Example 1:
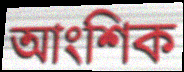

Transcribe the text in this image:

আংশিক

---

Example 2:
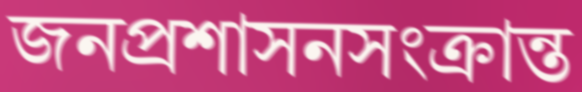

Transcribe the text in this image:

জনপ্রশাসনসংক্রান্ত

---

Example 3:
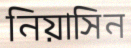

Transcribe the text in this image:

নিয়াসিন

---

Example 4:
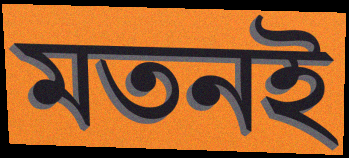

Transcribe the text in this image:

মতনই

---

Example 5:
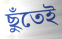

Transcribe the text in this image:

ছুঁতেই